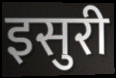
इसुरी